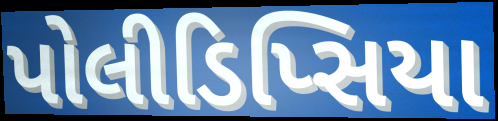
પોલીડિપ્સિયા